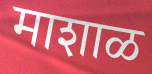
माशाळ